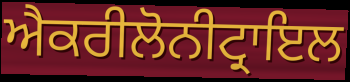
ਐਕਰੀਲੋਨੀਟ੍ਰਾਇਲ